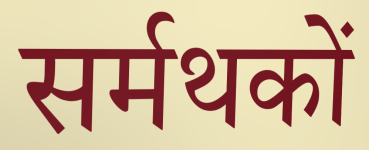
सर्मथकों